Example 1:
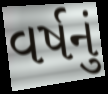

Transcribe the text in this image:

વર્ષનું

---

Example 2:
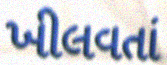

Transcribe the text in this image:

ખીલવતાં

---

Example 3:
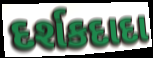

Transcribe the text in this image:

દર્શકદાદા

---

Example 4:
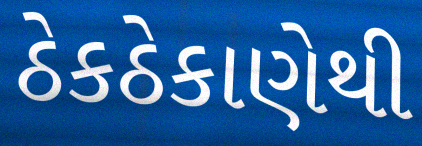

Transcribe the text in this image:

ઠેકઠેકાણેથી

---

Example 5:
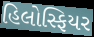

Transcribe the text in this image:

હિલોસ્ફિયર